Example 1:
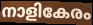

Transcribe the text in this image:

നാളികേരം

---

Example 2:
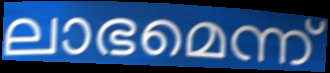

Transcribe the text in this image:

ലാഭമെന്ന്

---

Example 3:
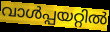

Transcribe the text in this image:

വാൾപ്പയറ്റിൽ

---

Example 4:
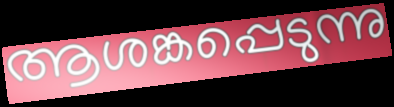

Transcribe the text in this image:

ആശങ്കപ്പെടുന്നു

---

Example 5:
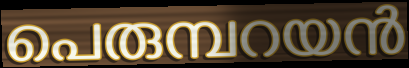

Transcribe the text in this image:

പെരുമ്പറയൻ